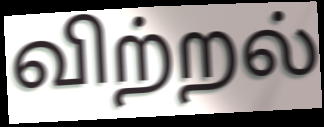
விற்றல்